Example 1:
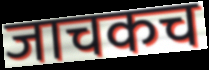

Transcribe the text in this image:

जाचकच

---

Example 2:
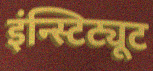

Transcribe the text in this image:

इंन्स्टिट्यूट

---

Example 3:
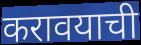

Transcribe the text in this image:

करावयाची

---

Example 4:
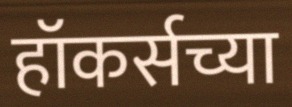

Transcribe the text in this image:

हॉकर्सच्या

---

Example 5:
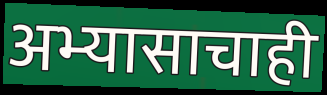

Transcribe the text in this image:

अभ्यासाचाही